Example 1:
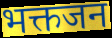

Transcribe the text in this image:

भक्तजन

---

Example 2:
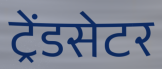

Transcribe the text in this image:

ट्रेंडसेटर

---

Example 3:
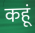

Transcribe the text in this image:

कहूं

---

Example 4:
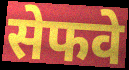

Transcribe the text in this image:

सेफवे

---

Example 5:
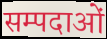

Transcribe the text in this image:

सम्पदाओं